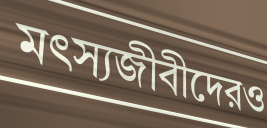
মৎস্যজীবীদেরও